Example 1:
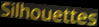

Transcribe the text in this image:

Silhouettes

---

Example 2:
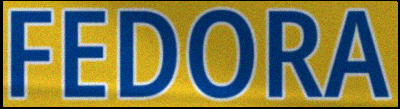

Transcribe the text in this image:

FEDORA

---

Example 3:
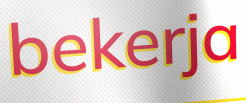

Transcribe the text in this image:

bekerja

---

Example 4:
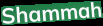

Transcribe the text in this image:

Shammah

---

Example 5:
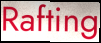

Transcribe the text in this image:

Rafting